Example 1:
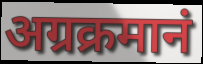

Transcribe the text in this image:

अग्रक्रमानं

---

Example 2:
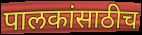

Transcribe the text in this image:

पालकांसाठीच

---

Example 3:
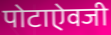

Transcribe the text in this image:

पोटाऐवजी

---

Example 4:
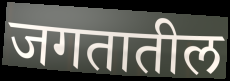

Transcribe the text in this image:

जगतातील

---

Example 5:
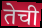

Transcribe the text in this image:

तेची